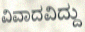
ವಿವಾದವಿದ್ದು